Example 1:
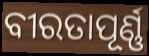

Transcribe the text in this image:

ବୀରତାପୂର୍ଣ୍ଣ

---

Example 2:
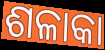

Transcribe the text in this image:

ଶଳାକା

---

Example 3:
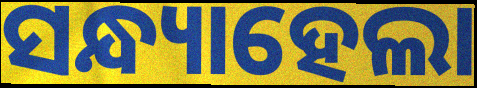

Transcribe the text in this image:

ସନ୍ଧ୍ୟାହେଲା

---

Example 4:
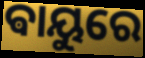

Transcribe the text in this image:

ଵାୟୁରେ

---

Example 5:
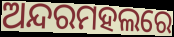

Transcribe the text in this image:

ଅନ୍ଦରମହଲରେ